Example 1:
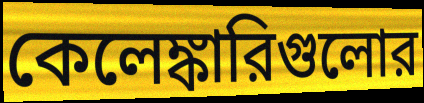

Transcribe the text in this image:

কেলেঙ্কারিগুলোর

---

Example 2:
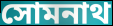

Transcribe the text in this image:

সোমনাথ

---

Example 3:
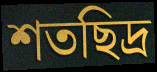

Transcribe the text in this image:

শতছিদ্র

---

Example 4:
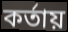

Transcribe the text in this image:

কর্তায়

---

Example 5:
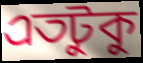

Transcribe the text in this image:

এতটুকু